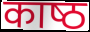
काष्‍ठ